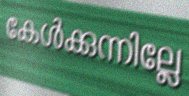
കേൾക്കുന്നില്ലേ